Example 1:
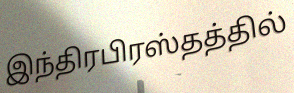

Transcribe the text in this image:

இந்திரபிரஸ்தத்தில்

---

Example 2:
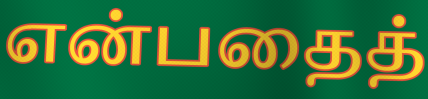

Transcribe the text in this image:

என்பதைத்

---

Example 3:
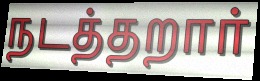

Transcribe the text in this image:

நடத்தறார்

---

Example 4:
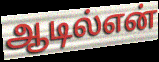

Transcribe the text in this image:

ஆடில்என்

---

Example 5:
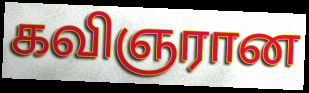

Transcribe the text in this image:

கவிஞரான